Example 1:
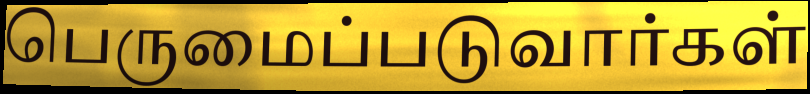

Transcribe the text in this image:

பெருமைப்படுவார்கள்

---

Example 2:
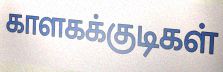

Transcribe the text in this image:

காளகக்குடிகள்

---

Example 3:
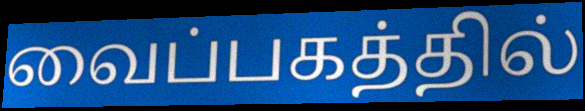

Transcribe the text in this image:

வைப்பகத்தில்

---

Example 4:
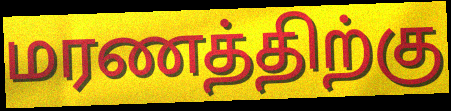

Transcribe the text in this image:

மரணத்திற்கு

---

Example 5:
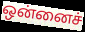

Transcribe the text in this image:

ஒன்னைச்